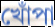
খোঁপা